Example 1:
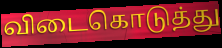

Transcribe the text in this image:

விடைகொடுத்து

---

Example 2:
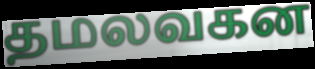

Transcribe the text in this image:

தமலவகன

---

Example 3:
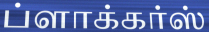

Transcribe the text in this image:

ப்ளாக்கர்ஸ்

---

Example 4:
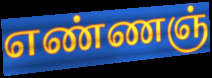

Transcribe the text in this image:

எண்ணஞ்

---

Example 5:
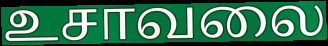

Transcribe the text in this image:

உசாவலை